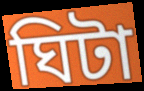
ঘিটা